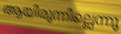
ആയിരുന്നില്ലെന്നു